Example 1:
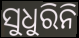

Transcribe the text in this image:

ସୁଧୁରିନି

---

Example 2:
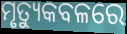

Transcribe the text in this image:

ମୃତ୍ୟୁକବଳରେ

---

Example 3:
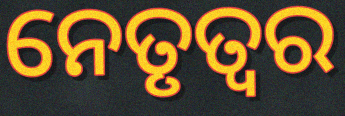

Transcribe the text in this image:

ନେତୃତ୍ବର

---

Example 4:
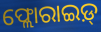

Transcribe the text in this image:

ଫ୍ଲୋରାଇଡ଼୍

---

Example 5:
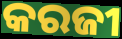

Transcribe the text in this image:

କରଜୀ